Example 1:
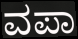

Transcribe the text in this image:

ವಪಾ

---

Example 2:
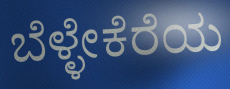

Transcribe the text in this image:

ಬೆಳ್ಳೇಕೆರೆಯ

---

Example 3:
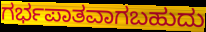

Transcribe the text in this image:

ಗರ್ಭಪಾತವಾಗಬಹುದು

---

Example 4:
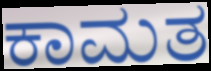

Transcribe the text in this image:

ಕಾಮತ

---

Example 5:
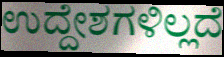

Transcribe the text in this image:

ಉದ್ದೇಶಗಳಿಲ್ಲದೆ